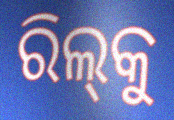
ରିଲ୍‌କୁ